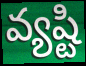
వ్యష్టి